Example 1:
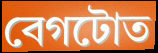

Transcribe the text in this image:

বেগটোত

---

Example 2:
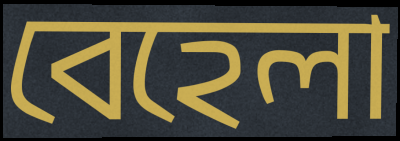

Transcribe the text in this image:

বেহেলা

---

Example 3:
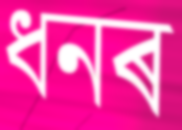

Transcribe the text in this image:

ধনৰ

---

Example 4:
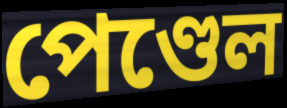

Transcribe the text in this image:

পেণ্ডেল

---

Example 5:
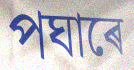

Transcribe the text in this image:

পঘাৰে